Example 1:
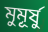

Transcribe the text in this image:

মুমূৰ্ষু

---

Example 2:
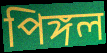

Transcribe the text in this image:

পিঙ্গল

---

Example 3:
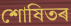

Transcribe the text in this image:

শোষিতৰ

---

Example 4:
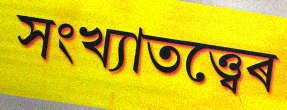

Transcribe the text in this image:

সংখ্যাতত্ত্বেৰ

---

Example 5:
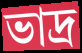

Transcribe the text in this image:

ভাদ্ৰ